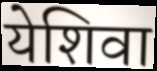
येशिवा